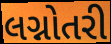
લગ્નોતરી